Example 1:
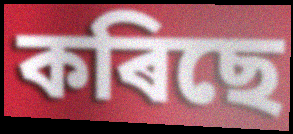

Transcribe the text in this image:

কৰিছে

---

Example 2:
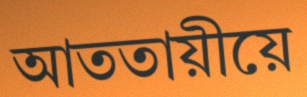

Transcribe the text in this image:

আততায়ীয়ে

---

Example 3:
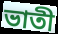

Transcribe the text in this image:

ভাতী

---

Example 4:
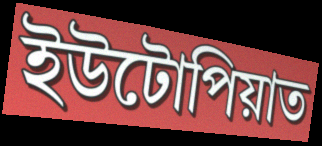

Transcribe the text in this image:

ইউটোপিয়াত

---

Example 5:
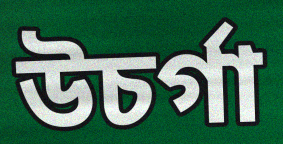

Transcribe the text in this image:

উচৰ্গা